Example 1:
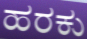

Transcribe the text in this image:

ಹರಕು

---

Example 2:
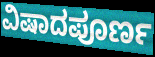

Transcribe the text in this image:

ವಿಷಾದಪೂರ್ಣ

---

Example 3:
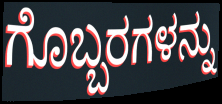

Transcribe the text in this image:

ಗೊಬ್ಬರಗಳನ್ನು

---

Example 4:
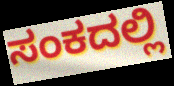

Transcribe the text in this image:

ಸಂಕದಲ್ಲಿ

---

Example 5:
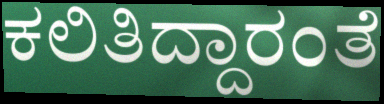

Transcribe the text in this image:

ಕಲಿತಿದ್ದಾರಂತೆ